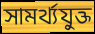
সামর্থ্যযুক্ত